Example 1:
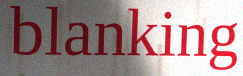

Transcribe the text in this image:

blanking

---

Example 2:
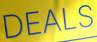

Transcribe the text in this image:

DEALS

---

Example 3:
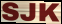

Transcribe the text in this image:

SJK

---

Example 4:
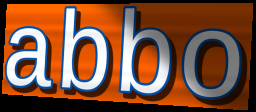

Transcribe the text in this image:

abbo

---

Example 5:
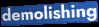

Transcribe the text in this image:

demolishing